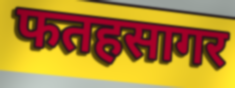
फतहसागर